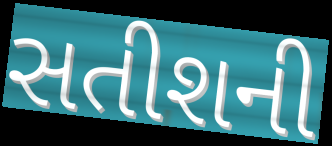
સતીશની